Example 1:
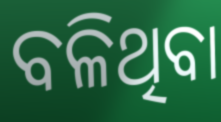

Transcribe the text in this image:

ବଳିଥିବା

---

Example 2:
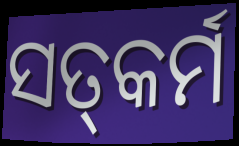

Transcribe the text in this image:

ସତ୍‍କର୍ମ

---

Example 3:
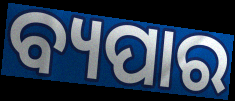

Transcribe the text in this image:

ବ୍ୟପାର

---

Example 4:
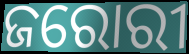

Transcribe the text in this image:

ଜରୋରୀ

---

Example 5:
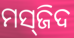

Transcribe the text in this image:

ମସ୍‌ଜିଦ